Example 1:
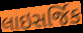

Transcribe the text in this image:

લાઇસર્જિક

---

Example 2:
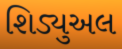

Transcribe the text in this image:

શિડ્યુઅલ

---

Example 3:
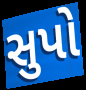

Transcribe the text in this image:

સુપો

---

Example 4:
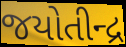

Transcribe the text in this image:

જયોતીન્દ્ર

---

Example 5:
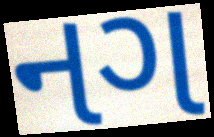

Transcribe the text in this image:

નગ